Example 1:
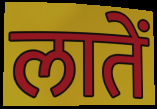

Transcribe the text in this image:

लातें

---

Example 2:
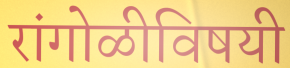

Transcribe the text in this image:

रांगोळीविषयी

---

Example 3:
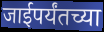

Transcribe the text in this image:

जाईपर्यंतच्या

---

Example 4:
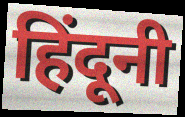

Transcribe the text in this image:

हिंदूनी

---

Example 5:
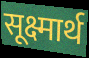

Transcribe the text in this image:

सूक्ष्मार्थ